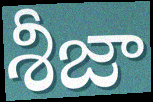
శీజా